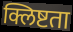
क्लिष्टता